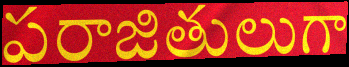
పరాజితులుగా